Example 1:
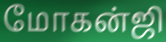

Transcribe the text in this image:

மோகன்ஜி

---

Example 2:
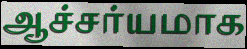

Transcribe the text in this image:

ஆச்சர்யமாக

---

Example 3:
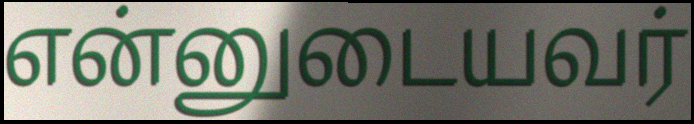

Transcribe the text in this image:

என்னுடையவர்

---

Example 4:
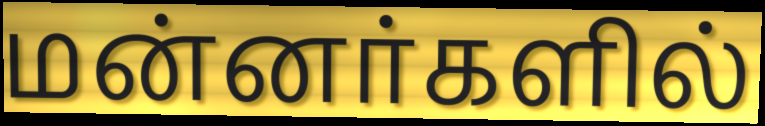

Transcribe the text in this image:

மன்னர்களில்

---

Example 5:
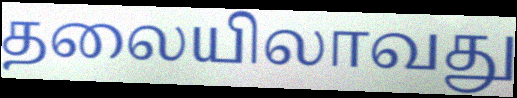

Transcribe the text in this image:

தலையிலாவது